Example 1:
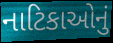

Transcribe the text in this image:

નાટિકાઓનું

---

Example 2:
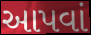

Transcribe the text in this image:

આપવાં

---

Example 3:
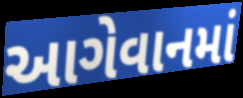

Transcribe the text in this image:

આગેવાનમાં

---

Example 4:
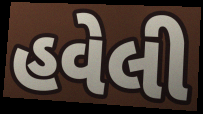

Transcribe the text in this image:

હવેલી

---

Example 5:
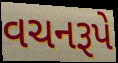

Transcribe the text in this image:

વચનરૂપે